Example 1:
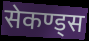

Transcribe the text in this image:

सेकण्ड्स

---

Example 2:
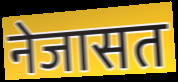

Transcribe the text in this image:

नेजासत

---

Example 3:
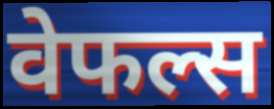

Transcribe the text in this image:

वेफल्स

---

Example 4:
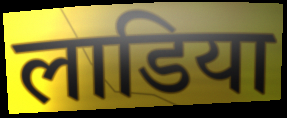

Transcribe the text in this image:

लाडिया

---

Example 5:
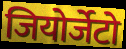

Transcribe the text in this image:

जियोर्जेटो